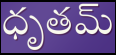
ధృతమ్